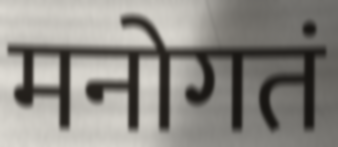
मनोगतं